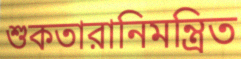
শুকতারানিমন্ত্রিত